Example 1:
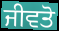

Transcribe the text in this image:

ਜੀਵਤੋ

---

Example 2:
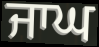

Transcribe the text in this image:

ਜਾਘ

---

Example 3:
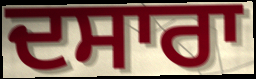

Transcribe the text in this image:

ਦਸਾਰਾ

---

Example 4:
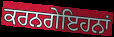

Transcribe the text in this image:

ਕਰਨਗੇਇਹਨਾਂ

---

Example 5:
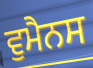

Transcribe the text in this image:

ਵੁਮੈਨਸ